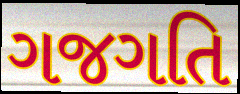
ગજગતિ